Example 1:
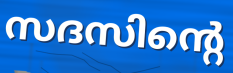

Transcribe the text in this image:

സദസിന്റെ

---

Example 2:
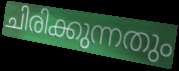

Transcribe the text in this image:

ചിരിക്കുന്നതും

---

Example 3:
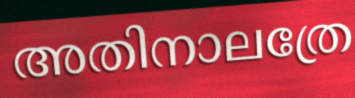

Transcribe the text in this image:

അതിനാലത്രേ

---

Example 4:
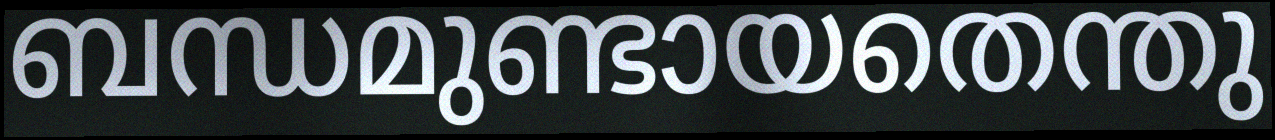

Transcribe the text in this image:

ബന്ധമുണ്ടായതെന്തു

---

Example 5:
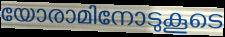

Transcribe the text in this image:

യോരാമിനോടുകൂടെ